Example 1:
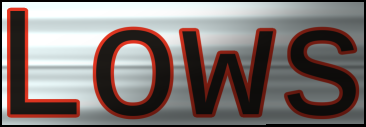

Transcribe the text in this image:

Lows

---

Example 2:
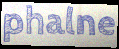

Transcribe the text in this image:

phalne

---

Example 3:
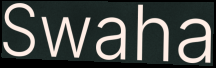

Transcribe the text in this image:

Swaha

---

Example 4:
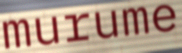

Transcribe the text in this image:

murume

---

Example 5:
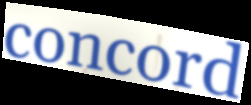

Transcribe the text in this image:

concord